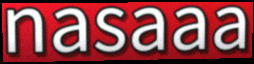
nasaaa